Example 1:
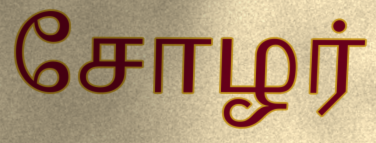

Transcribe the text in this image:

சோழர்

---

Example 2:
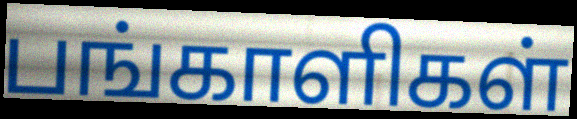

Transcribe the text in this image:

பங்காளிகள்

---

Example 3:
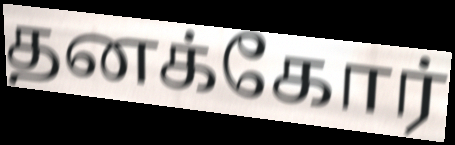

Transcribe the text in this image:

தனக்கோர்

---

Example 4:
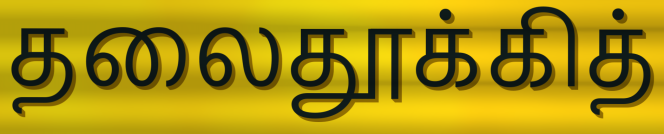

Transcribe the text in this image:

தலைதூக்கித்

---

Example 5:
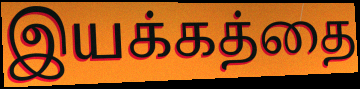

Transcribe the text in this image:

இயக்கத்தை